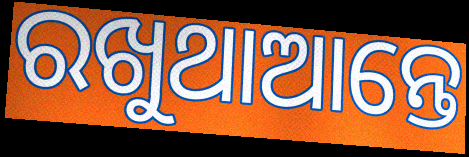
ରଖୁଥାଆନ୍ତେ